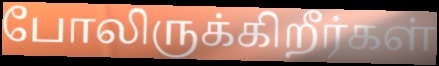
போலிருக்கிறீர்கள்